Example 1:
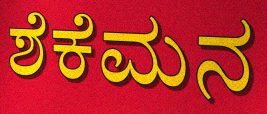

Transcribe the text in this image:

ಶೆಕೆಮನ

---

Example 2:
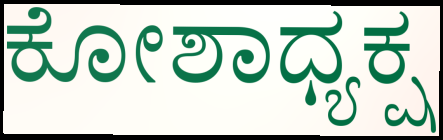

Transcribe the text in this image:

ಕೋಶಾಧ್ಯಕ್ಷ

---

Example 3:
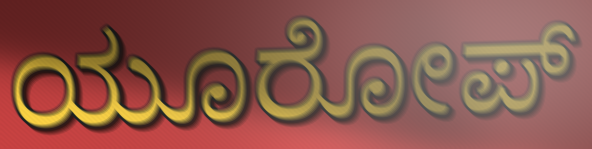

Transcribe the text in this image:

ಯೂರೋಪ್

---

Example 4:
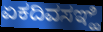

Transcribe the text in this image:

ಏಕದಿವಸಞ್ಹಿ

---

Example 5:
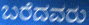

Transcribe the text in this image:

ಬರೆದವರು